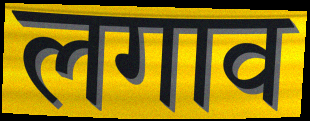
लगाव